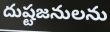
దుష్టజనులను